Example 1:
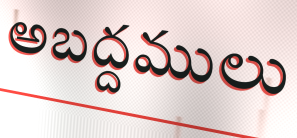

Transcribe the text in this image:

అబద్దములు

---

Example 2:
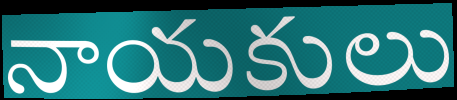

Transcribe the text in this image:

నాయకులు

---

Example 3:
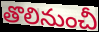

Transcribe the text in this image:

తొలినుంచీ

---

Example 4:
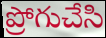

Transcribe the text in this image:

ప్రోగుచేసి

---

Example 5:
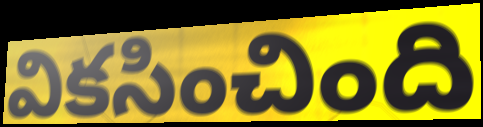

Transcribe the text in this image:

వికసించింది